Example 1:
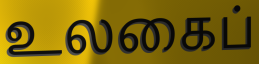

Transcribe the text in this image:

உலகைப்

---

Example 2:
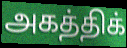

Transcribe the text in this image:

அகத்திக்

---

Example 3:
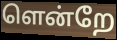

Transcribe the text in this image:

ளென்றே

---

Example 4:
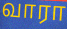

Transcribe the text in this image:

வாரா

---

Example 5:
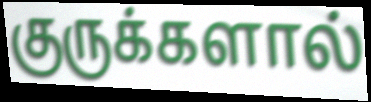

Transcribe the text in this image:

குருக்களால்